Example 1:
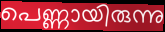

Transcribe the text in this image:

പെണ്ണായിരുന്നു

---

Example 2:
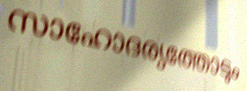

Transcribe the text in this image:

സാഹോദര്യത്തോടും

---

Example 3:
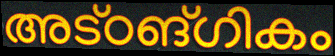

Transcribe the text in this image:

അട്ഠങ്ഗികം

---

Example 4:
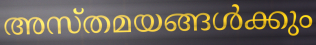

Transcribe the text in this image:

അസ്തമയങ്ങൾക്കും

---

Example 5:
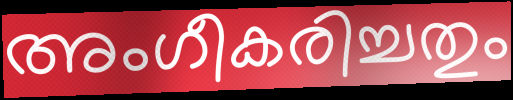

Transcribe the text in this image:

അംഗീകരിച്ചതും